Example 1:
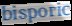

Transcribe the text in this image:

bisporic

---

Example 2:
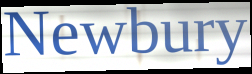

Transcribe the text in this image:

Newbury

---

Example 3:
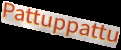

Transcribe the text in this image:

Pattuppattu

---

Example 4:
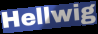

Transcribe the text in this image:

Hellwig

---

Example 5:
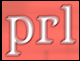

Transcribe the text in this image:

prl